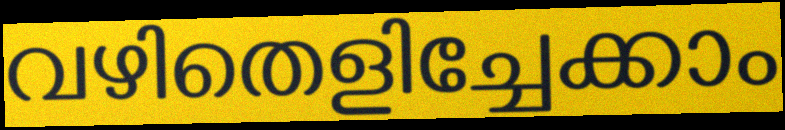
വഴിതെളിച്ചേക്കാം